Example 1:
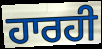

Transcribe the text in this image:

ਹਾਰਹੀ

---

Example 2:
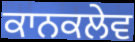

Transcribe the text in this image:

ਕਾਨਕਲੇਵ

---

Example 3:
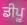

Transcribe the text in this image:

ਡੀਪੂ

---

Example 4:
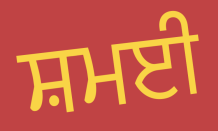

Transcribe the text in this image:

ਸ਼ਮਈ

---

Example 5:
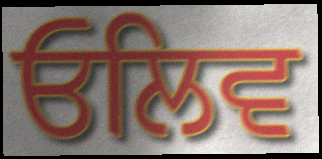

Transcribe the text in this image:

ਓਲਿਵ